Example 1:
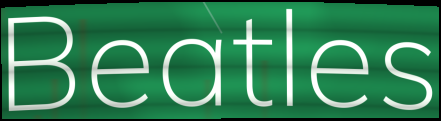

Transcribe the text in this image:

Beatles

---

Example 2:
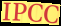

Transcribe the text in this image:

IPCC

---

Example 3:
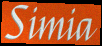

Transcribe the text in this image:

Simia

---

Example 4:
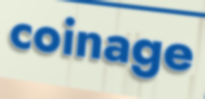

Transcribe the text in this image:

coinage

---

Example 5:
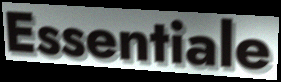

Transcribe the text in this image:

Essentiale